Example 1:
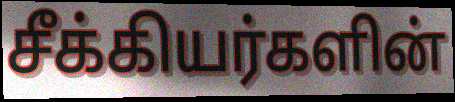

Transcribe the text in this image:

சீக்கியர்களின்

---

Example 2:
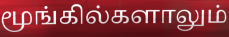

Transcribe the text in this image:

மூங்கில்களாலும்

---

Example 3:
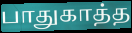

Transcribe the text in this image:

பாதுகாத்த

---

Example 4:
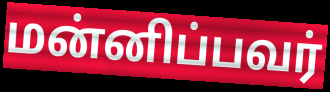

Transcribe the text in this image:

மன்னிப்பவர்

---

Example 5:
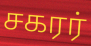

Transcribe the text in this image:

சகரர்